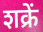
शक्रें